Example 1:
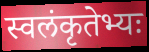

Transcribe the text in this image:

स्वलंकृतेभ्यः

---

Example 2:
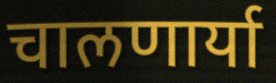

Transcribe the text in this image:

चालणार्या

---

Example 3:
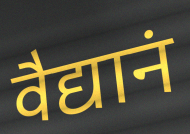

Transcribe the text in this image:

वैद्यानं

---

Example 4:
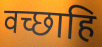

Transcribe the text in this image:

वच्छाहि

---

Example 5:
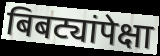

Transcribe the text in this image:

बिबट्यांपेक्षा